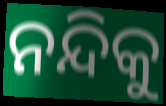
ନନ୍ଦିକୁ